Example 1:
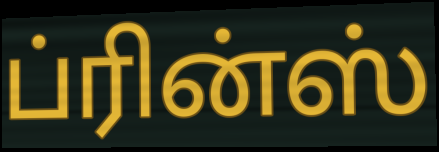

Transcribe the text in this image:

ப்ரின்ஸ்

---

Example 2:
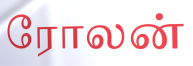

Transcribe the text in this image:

ரோலன்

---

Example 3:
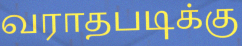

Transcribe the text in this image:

வராதபடிக்கு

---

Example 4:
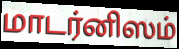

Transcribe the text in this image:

மாடர்னிஸம்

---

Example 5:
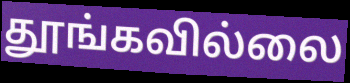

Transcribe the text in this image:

தூங்கவில்லை